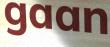
gaan